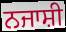
ਨਜਾਸ਼ੀ